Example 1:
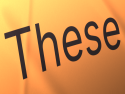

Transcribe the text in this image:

These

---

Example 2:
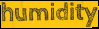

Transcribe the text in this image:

humidity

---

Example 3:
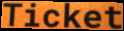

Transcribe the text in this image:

Ticket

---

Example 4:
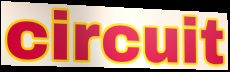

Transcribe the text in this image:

circuit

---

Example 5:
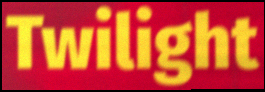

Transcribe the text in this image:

Twilight